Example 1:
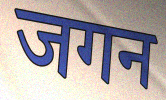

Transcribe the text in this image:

जगन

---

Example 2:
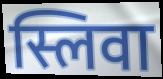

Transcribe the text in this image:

स्लिवा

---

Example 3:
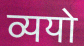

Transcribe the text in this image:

व्ययो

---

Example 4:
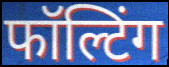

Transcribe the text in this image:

फॉल्टिंग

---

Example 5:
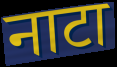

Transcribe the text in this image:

नाटा